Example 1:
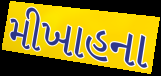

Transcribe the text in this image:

મીખાહના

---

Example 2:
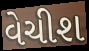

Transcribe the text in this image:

વેચીશ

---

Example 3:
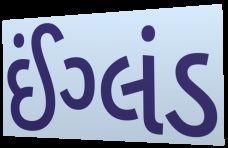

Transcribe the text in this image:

ઈંગ્લંડ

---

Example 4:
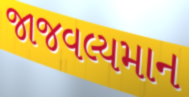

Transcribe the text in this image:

જાજવલ્યમાન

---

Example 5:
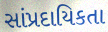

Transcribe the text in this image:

સાંપ્રદાયિકતા